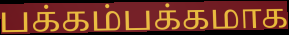
பக்கம்பக்கமாக